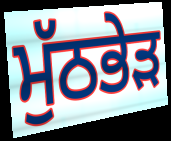
ਮੁੱਠਭੇੜ